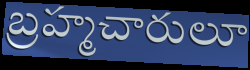
బ్రహ్మచారులూ